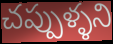
చప్పుళ్ళని